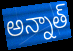
అన్నాత్